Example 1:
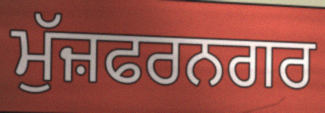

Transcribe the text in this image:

ਮੁੱਜ਼ਫਰਨਗਰ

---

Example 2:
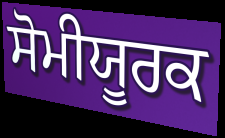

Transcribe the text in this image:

ਸੋਮੀਯੂਰਕ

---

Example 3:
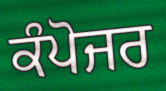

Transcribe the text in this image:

ਕੰਪੋਜਰ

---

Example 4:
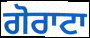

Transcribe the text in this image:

ਗੋਰਾਟਾ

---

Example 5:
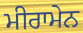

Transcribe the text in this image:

ਮੀਰਾਮੇਨ